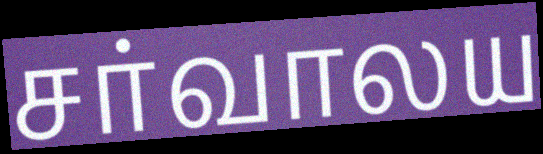
சர்வாலய